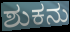
ಶುಕನು